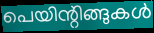
പെയിന്റിങ്ങുകൾ